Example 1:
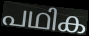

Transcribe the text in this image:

പഥിക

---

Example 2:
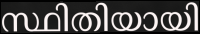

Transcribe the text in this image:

സ്ഥിതിയായി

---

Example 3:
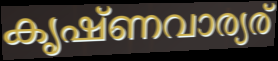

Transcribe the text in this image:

കൃഷ്ണവാര്യര്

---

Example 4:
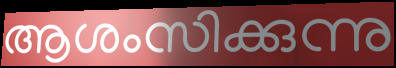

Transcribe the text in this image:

ആശംസിക്കുന്നു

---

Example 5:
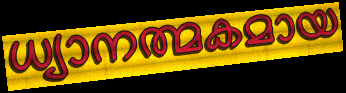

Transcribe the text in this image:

ധ്യാനത്മകമായ